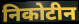
निकोटीन